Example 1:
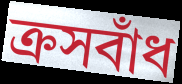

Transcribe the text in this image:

ক্রসবাঁধ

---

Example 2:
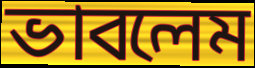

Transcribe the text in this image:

ভাবলেম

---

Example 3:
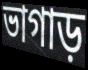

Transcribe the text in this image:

ভাগাড়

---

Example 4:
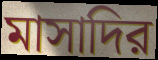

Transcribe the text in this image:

মাসাদির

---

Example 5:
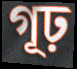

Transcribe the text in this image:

গূঢ়